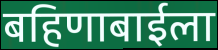
बहिणाबाईला